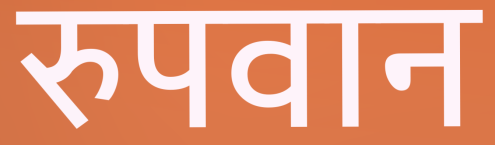
रुपवान